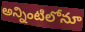
అన్నింటిలోనూ